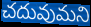
చదువుమని